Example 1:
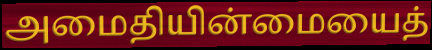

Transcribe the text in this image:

அமைதியின்மையைத்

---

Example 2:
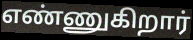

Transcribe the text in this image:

எண்ணுகிறார்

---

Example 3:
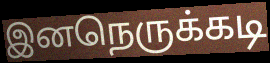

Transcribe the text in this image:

இனநெருக்கடி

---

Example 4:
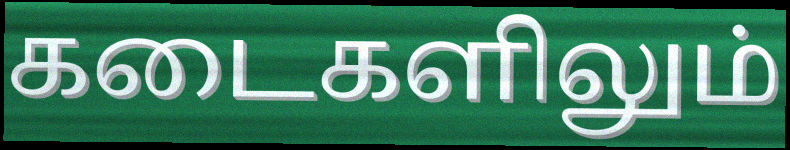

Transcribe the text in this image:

கடைகளிலும்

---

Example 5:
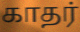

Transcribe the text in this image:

காதர்